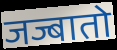
जज्बातो